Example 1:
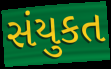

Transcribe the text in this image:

સંયુકત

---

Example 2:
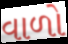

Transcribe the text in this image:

વાળો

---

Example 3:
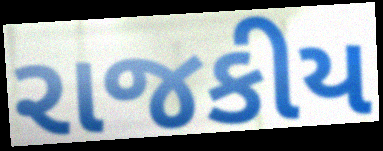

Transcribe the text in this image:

રાજકીય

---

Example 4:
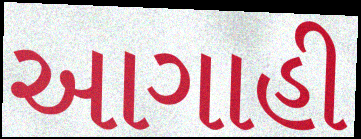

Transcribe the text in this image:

આગાહી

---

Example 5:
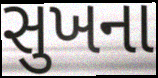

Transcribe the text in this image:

સુખના